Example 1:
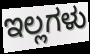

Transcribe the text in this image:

ಇಲ್ಲಗಳು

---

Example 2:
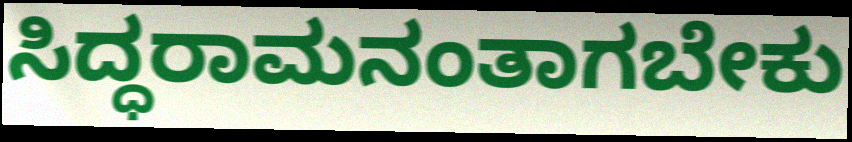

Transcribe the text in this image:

ಸಿದ್ಧರಾಮನಂತಾಗಬೇಕು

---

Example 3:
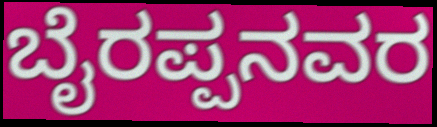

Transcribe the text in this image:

ಬೈರಪ್ಪನವರ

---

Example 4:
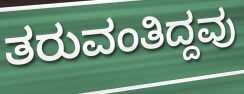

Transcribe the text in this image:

ತರುವಂತಿದ್ದವು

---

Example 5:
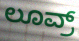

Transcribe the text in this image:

ಲೂವ್ರ್